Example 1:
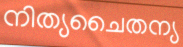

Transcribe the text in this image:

നിത്യചൈതന്യ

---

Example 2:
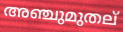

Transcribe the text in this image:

അഞ്ചുമുതല്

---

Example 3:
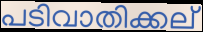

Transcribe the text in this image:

പടിവാതിക്കല്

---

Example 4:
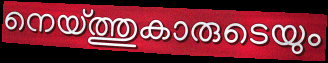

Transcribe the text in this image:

നെയ്ത്തുകാരുടെയും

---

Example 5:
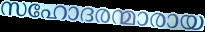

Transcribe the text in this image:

സഹോദരന്മാരായ